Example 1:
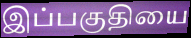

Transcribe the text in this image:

இப்பகுதியை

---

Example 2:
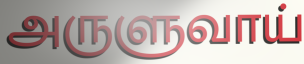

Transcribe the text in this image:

அருளுவாய்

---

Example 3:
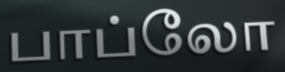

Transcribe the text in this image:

பாப்லோ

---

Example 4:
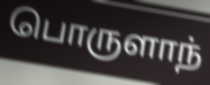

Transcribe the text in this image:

பொருளாந்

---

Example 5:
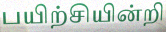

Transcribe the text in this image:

பயிற்சியின்றி